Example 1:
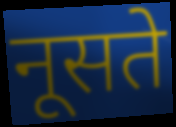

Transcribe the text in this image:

नूसते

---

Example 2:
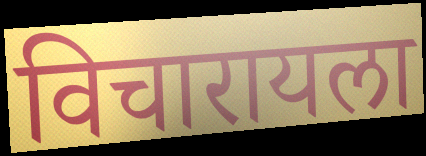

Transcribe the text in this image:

विचारायला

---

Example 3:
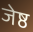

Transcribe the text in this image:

जेष्ठ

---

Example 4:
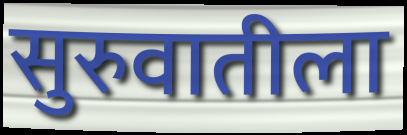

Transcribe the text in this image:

सुरुवातीला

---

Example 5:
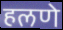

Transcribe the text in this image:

हलणे